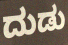
ದುಡು